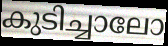
കുടിച്ചാലോ